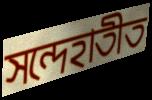
সন্দেহাতীত